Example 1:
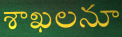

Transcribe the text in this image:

శాఖలనూ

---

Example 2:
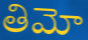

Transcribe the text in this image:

తిమో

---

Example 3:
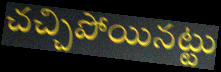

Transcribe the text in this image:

చచ్చిపోయినట్టు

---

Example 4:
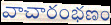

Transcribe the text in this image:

వాచారంభణం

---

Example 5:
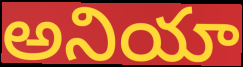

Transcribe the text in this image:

అనియా